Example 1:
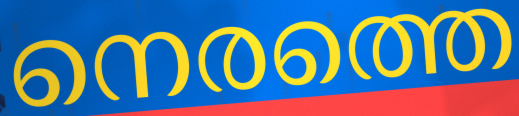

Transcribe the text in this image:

നെരത്തെ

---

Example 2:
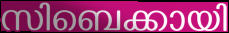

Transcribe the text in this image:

സിബെക്കായി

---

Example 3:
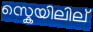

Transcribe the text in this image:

സ്കെയിലില്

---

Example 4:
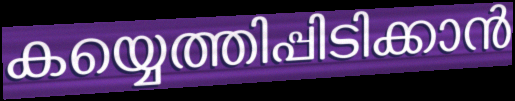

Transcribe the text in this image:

കയ്യെത്തിപ്പിടിക്കാൻ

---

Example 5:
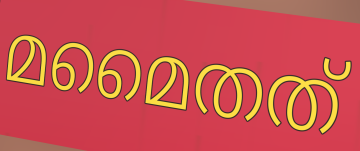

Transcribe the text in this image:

മമൈതത്